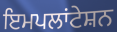
ਇਮਪਲਾਂਟੇਸ਼ਨ